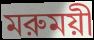
মরুময়ী